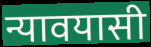
न्यावयासी